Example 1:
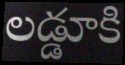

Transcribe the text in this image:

లడ్డూకి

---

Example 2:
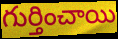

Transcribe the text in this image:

గుర్తించాయి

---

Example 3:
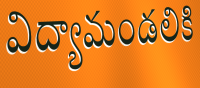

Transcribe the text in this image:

విద్యామండలికి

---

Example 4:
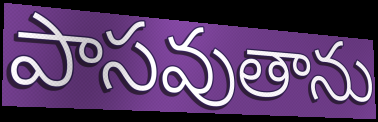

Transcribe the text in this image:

పాసవుతాను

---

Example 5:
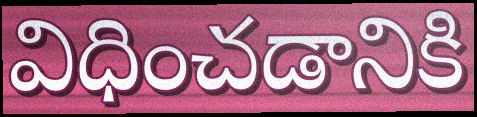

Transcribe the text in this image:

విధించడానికి